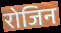
रोजिन